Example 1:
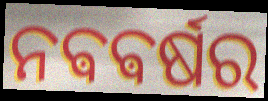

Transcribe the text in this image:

ନଵଵର୍ଷର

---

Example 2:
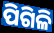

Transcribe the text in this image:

ପିଗିଳି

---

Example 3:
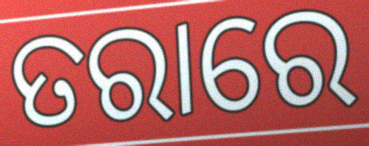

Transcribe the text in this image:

ତରାରେ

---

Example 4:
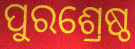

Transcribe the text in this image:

ପୁରଶ୍ରେଷ୍ଠ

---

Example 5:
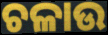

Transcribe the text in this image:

ଚଳାଉ